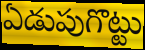
ఏడుపుగొట్టు